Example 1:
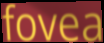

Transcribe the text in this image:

fovea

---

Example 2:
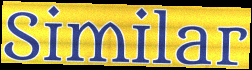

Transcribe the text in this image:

Similar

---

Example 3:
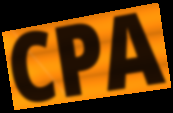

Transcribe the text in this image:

CPA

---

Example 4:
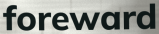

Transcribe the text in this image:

foreward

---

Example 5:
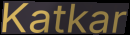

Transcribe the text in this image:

Katkar